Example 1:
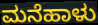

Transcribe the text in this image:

ಮನೆಹಾಳು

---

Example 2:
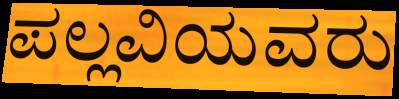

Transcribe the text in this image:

ಪಲ್ಲವಿಯವರು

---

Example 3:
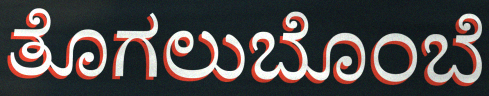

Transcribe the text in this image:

ತೊಗಲುಬೊಂಬೆ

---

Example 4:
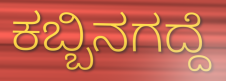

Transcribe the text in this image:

ಕಬ್ಬಿನಗದ್ದೆ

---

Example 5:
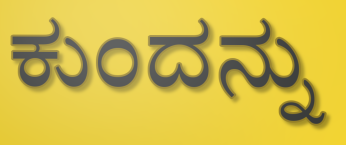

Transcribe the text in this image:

ಕುಂದನ್ನು